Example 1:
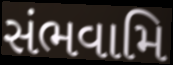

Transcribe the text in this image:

સંભવામિ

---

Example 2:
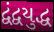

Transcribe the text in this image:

દ્વંદ્વયુદ્ધ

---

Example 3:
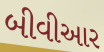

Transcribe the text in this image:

બીવીઆર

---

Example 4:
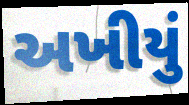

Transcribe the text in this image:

અખીયું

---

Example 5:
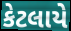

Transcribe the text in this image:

કેટલાયે